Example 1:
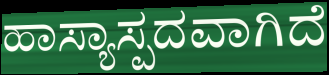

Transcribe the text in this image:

ಹಾಸ್ಯಾಸ್ಪದವಾಗಿದೆ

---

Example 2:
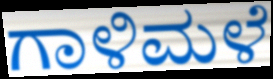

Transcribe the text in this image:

ಗಾಳಿಮಳೆ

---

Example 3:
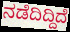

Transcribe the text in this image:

ನಡೆದಿದ್ದಿದೆ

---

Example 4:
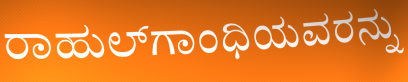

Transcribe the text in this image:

ರಾಹುಲ್‌ಗಾಂಧಿಯವರನ್ನು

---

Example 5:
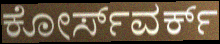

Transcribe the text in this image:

ಕೋರ್ಸ್‌ವರ್ಕ್